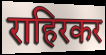
राहिरकर